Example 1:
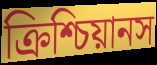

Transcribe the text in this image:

ক্রিশ্চিয়ানস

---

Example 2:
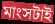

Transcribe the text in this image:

মাংসটাই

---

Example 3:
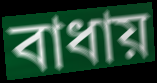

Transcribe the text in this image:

বাধায়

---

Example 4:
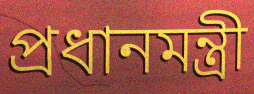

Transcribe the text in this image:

প্রধানমন্ত্রী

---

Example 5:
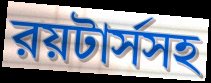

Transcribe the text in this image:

রয়টার্সসহ